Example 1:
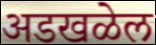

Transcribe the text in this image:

अडखळेल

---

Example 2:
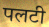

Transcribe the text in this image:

पलटी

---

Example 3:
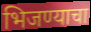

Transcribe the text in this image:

भिजण्याचा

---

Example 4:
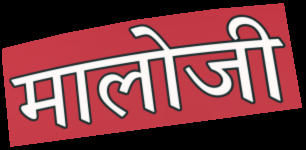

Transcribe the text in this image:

मालोजी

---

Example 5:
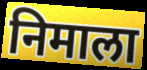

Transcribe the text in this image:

निमाला